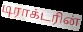
டிராக்டரின்